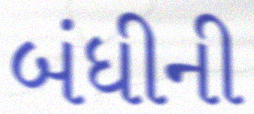
બંધીની